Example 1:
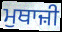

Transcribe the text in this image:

ਮੁਥਾਜ਼ੀ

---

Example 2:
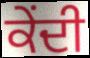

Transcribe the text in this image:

ਕੇਂਦੀ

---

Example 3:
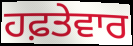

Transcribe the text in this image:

ਹਫ਼ਤੇਵਾਰ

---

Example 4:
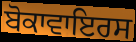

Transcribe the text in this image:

ਬੋਕਾਵਾਇਰਸ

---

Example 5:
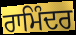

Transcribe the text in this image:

ਰਾਮਿੰਦਰ